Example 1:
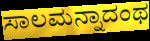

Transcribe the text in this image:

ಸಾಲಮನ್ನಾದಂಥ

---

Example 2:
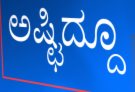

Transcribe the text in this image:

ಅಷ್ಟಿದ್ದೂ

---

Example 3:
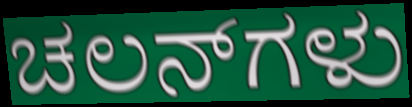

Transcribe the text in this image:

ಚಲನ್‌ಗಳು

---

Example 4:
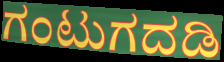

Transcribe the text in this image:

ಗಂಟುಗದಡಿ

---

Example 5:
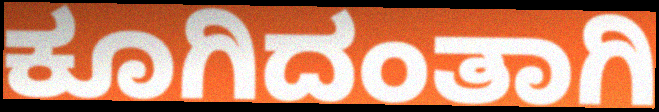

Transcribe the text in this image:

ಕೂಗಿದಂತಾಗಿ